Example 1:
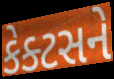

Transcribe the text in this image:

કેક્ટસને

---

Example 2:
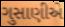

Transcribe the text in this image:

ગુસાણીએ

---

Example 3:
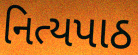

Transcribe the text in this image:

નિત્યપાઠ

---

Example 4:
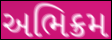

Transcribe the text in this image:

અભિક્રમ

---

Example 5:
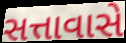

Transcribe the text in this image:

સત્તાવાસે